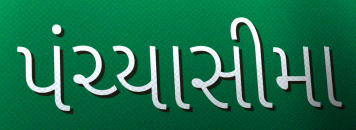
પંચ્યાસીમા